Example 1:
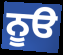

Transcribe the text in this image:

ਨੂੳ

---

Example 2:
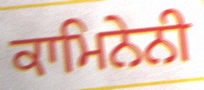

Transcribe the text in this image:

ਕਾਮਿਨੇਨੀ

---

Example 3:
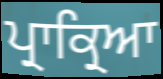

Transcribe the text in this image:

ਪ੍ਰਾਕ੍ਰਿਆ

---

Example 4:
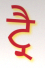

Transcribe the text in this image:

ਟ੍ਰੈ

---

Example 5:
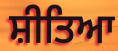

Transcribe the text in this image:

ਸ਼ੀਤਿਆ